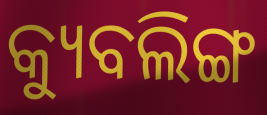
କ୍ୟୁବଲିଙ୍ଗ